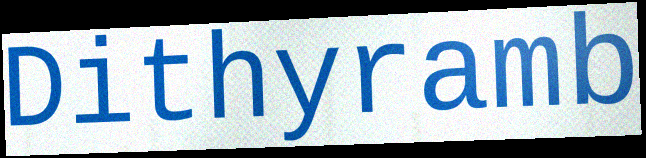
Dithyramb